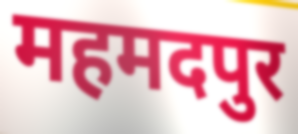
महमदपुर